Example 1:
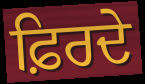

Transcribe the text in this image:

ਫ਼ਿਰਦੇ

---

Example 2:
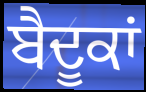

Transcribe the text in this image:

ਬੈਦੂਕਾਂ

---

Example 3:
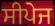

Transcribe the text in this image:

ਸੀਪੇਜ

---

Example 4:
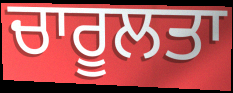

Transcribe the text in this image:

ਚਾਰੂਲਤਾ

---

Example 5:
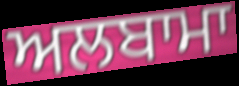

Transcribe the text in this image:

ਅਲਬਾਮਾ